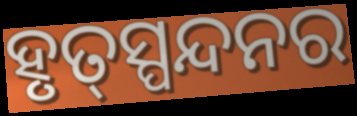
ହୃତ୍‌ସ୍ପନ୍ଦନର